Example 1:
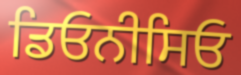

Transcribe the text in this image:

ਡਿਓਨੀਸਿਓ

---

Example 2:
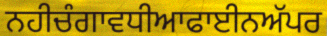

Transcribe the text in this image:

ਨਹੀਚੰਗਾਵਧੀਆਫਾਈਨਅੱਪਰ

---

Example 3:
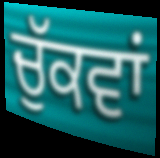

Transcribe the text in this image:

ਚੁੱਕਵਾਂ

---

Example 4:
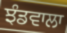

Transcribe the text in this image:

ਝੰਡਵਾਲਾ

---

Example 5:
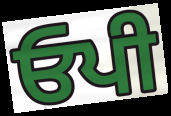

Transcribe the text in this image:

ਓਪੀ